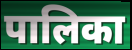
पालिका